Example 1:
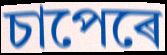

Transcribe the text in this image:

চাপেৰে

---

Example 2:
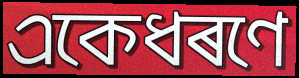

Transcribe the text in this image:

একেধৰণে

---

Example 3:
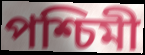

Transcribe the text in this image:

পশ্চিমী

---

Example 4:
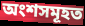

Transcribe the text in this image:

অংশসমূহত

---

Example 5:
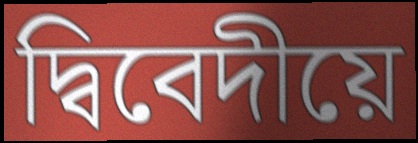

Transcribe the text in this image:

দ্বিবেদীয়ে